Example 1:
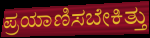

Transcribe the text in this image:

ಪ್ರಯಾಣಿಸಬೇಕಿತ್ತು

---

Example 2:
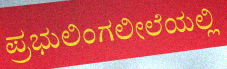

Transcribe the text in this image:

ಪ್ರಭುಲಿಂಗಲೀಲೆಯಲ್ಲಿ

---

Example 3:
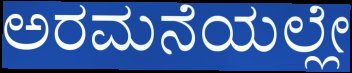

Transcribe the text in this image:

ಅರಮನೆಯಲ್ಲೇ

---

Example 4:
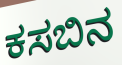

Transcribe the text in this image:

ಕಸಬಿನ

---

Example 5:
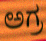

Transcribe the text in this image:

ಅಗ್ರ